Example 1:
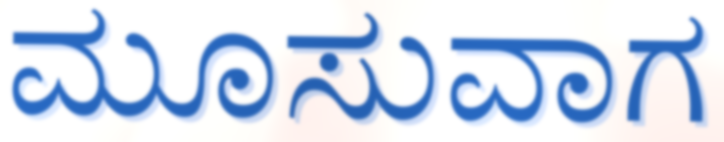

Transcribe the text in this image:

ಮೂಸುವಾಗ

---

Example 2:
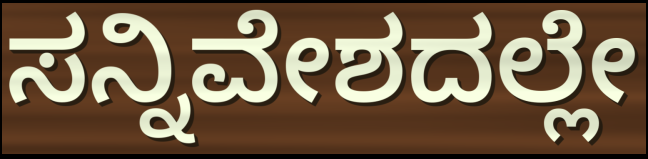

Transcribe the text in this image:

ಸನ್ನಿವೇಶದಲ್ಲೇ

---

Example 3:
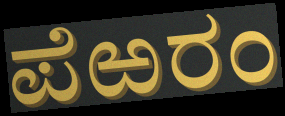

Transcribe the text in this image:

ಪೆಱರಂ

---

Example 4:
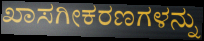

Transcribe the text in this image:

ಖಾಸಗೀಕರಣಗಳನ್ನು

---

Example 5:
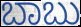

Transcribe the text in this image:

ಬಾಬು